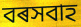
বৰসবাহ